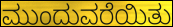
ಮುಂದುವರೆಯಿತು